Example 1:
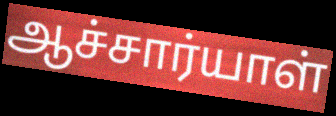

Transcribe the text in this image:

ஆச்சார்யாள்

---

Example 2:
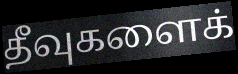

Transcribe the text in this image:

தீவுகளைக்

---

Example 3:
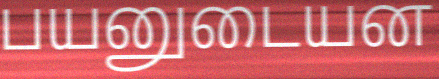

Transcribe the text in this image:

பயனுடையன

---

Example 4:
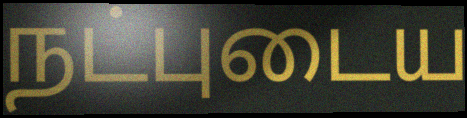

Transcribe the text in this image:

நட்புடைய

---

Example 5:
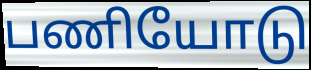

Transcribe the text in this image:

பணியோடு